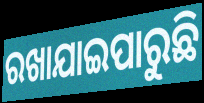
ରଖାଯାଇପାରୁଛି